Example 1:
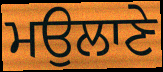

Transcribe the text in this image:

ਮਉਲਾਣੇ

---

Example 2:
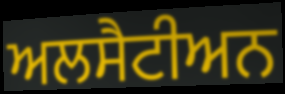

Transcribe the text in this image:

ਅਲਸੈਟੀਅਨ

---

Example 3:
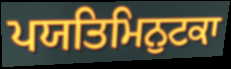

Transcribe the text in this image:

ਪਯਤਿਮਿਨੁਟਕਾ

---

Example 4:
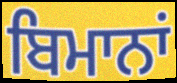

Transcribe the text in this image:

ਬਿਮਾਨਾਂ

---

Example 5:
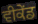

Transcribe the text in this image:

ਵੀਕੇਂਡ